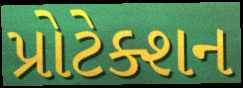
પ્રોટેક્શન